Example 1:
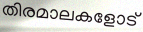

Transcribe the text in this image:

തിരമാലകളോട്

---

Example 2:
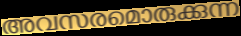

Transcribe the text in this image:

അവസരമൊരുക്കുന്ന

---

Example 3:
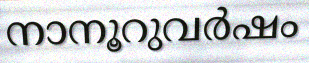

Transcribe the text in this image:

നാനൂറുവർഷം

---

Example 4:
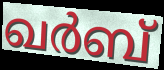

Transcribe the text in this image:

ഖർബ്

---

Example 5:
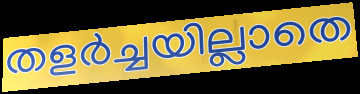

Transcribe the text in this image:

തളർച്ചയില്ലാതെ